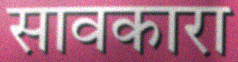
सावकारा